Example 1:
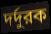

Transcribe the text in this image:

দর্দুরক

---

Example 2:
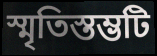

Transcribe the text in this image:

স্মৃতিস্তম্ভটি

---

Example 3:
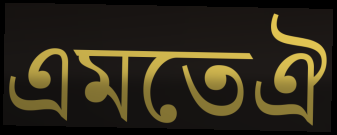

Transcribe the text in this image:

এমতেঐ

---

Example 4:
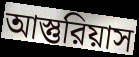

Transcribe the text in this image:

আস্তুরিয়াস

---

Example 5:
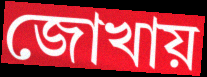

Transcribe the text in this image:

জোখায়